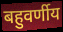
बहुवर्णीय